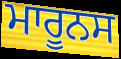
ਮਾਰੂਨਸ